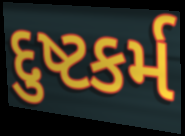
દુષ્ટકર્મ